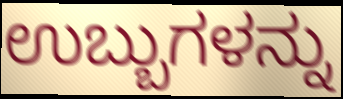
ಉಬ್ಬುಗಳನ್ನು